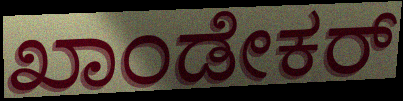
ಖಾಂಡೇಕರ್